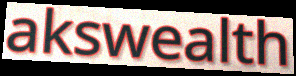
akswealth